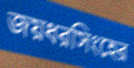
জয়ধরসিংহের